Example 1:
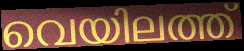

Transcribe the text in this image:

വെയിലത്ത്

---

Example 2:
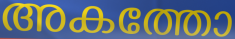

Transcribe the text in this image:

അകത്തോ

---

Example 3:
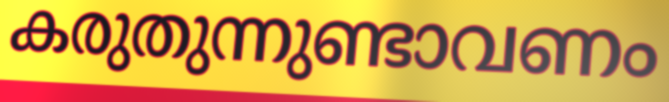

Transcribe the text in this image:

കരുതുന്നുണ്ടാവണം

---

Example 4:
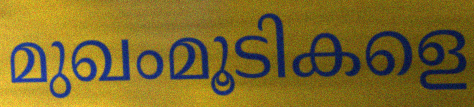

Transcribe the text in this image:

മുഖംമൂടികളെ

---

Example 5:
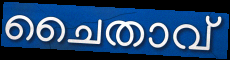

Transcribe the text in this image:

ചൈതാവ്